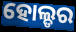
ହୋଲ୍ଡର